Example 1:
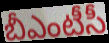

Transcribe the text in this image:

బీఎంటీసీ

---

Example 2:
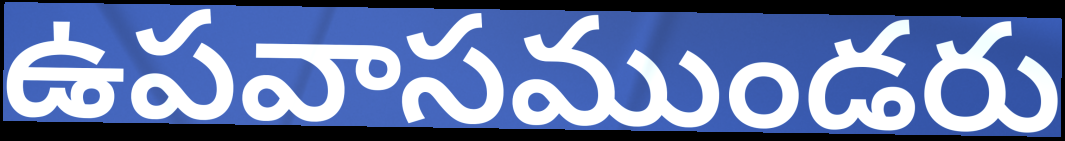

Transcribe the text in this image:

ఉపవాసముండరు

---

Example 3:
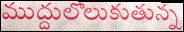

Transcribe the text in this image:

ముద్దులొలుకుతున్న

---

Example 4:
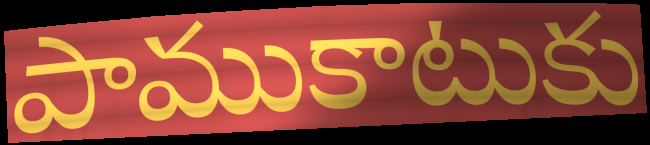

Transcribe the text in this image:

పాముకాటుకు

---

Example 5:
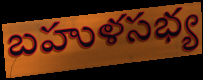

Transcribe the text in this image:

బహుళసభ్య